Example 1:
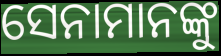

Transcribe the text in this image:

ସେନାମାନଙ୍କୁ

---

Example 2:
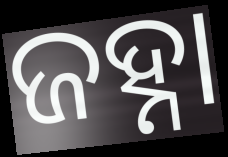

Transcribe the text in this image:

ଜହ୍ନା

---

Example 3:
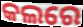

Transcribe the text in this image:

କଲରେ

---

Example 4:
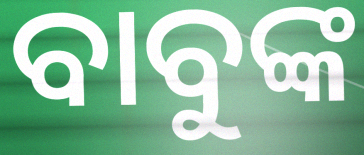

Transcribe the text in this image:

ବାବୁଙ୍କ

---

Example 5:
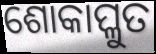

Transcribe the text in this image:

ଶୋକାପ୍ଳୁତ